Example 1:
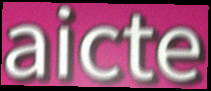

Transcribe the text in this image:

aicte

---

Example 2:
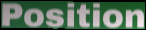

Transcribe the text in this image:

Position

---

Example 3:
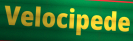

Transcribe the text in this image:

Velocipede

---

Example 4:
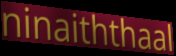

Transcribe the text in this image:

ninaiththaal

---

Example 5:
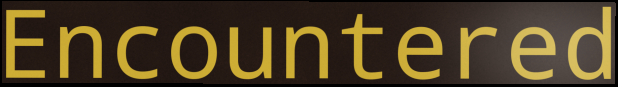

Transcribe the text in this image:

Encountered